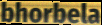
bhorbela